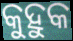
କୁହୁକ